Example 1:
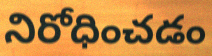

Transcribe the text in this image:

నిరోధించడం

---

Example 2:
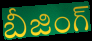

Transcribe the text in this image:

బీజింగ్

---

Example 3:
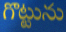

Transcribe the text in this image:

గొట్టును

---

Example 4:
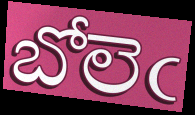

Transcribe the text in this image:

బోలెఁ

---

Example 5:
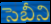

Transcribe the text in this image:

సెబీని